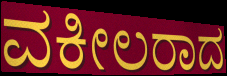
ವಕೀಲರಾದ